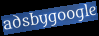
adsbygoogle